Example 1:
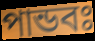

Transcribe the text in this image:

পান্ডবঃ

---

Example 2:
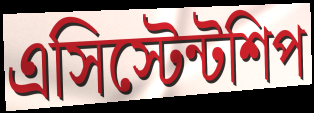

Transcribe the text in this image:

এসিস্টেন্টশিপ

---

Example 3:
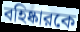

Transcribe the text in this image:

বহিষ্কারকে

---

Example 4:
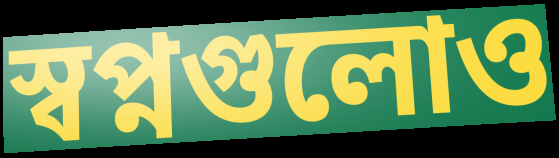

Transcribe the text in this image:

স্বপ্নগুলোও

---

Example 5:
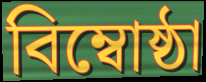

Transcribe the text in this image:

বিম্বোষ্ঠা